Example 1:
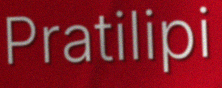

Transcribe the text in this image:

Pratilipi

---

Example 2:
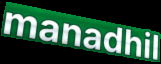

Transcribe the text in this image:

manadhil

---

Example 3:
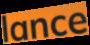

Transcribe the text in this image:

lance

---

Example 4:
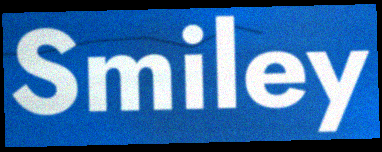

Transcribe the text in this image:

Smiley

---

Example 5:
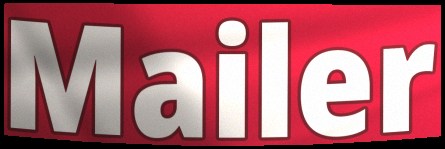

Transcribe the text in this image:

Mailer